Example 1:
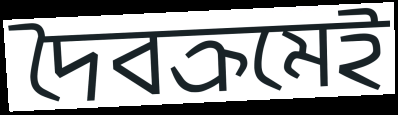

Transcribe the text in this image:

দৈবক্রমেই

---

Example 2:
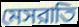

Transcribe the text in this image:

মেসরাতি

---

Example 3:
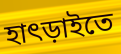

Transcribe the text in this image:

হাৎড়াইতে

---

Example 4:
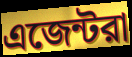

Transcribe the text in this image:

এজেন্টরা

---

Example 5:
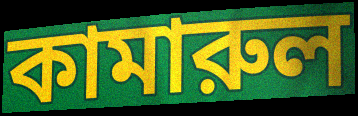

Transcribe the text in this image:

কামারুল